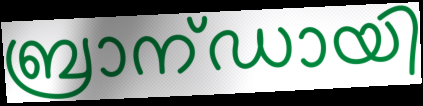
ബ്രാന്ഡായി